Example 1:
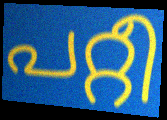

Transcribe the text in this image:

പറ്റീ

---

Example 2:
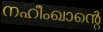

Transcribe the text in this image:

നഹീംഖാന്റെ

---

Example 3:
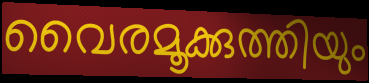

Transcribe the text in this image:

വൈരമൂക്കുത്തിയും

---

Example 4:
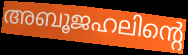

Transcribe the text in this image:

അബൂജഹലിന്റെ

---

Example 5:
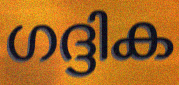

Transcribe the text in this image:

ഗദ്ദിക